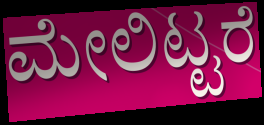
ಮೇಲಿಟ್ಟರೆ